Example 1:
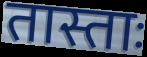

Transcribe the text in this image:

तास्ताः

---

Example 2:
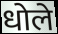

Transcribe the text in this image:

धोले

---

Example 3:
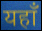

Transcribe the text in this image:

यहाँ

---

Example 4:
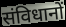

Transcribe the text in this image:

संविधानों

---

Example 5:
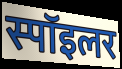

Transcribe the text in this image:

स्पॉइलर